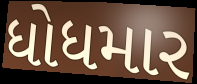
ધોધમાર